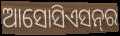
ଆସୋସିଏସନ୍‍ର